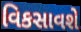
વિકસાવશે